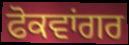
ਫੋਕਵਾਂਗਰ